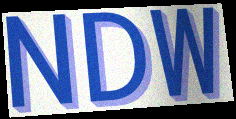
NDW